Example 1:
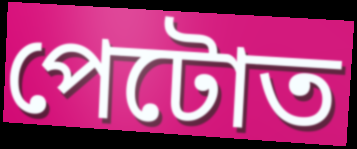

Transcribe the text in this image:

পেটোত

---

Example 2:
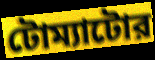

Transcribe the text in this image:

টোম্যাটোর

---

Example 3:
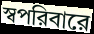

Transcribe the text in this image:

স্বপরিবারে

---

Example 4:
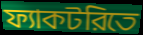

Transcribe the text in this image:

ফ্যাকটরিতে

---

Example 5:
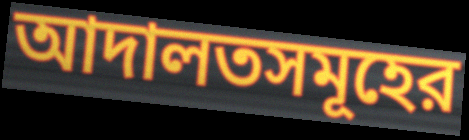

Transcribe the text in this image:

আদালতসমূহের